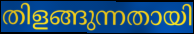
തിളങ്ങുന്നതായി